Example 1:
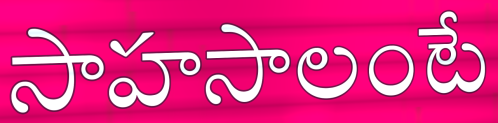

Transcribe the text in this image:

సాహసాలంటే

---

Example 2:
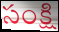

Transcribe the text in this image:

సంక్షి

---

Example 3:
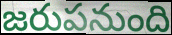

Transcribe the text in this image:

జరుపనుంది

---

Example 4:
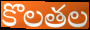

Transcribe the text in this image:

కొలతల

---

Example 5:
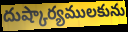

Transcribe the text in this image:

దుష్కార్యములకును